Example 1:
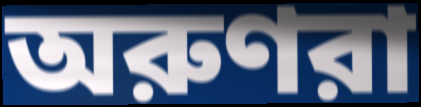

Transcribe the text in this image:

অরুণরা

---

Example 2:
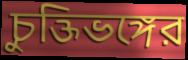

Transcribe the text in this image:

চুক্তিভঙ্গের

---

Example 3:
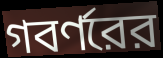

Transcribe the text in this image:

গবর্ণরের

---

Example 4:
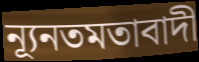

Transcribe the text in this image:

ন্যূনতমতাবাদী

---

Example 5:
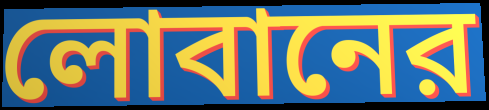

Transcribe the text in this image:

লোবানের